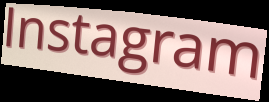
Instagram